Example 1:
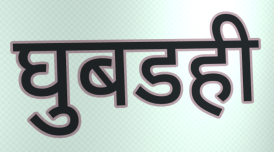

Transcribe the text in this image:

घुबडही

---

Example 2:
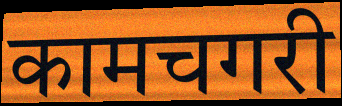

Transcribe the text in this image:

कामचगरी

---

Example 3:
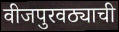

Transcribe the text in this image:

वीजपुरवठ्याची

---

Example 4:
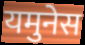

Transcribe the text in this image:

यमुनेस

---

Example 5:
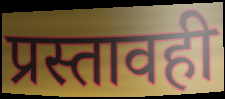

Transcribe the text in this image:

प्रस्तावही